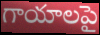
గాయాలపై